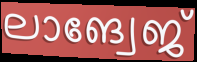
ലാങ്വേജ്